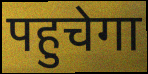
पहुचेगा